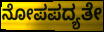
ನೋಪಪದ್ಯತೇ